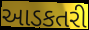
આડકતરી